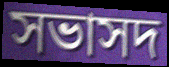
সভাসদ